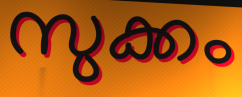
സുക്കം